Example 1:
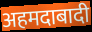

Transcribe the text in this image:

अहमदाबादी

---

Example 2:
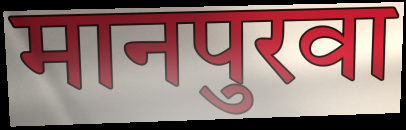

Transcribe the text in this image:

मानपुरवा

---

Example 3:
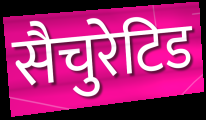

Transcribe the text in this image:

सैचुरेटिड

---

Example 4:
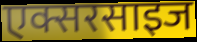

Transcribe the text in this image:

एक्सरसाइज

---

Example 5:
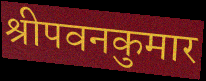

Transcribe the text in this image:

श्रीपवनकुमार